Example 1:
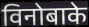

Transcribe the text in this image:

विनोबाके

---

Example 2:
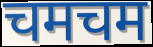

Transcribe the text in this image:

चमचम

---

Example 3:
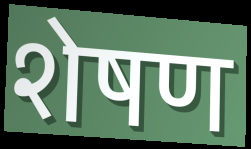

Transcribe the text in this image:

शेषण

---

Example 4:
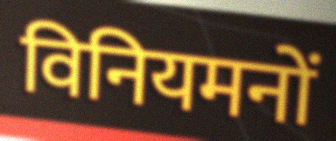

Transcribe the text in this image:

विनियमनों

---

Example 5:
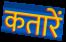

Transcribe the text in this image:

कतारें